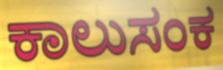
ಕಾಲುಸಂಕ